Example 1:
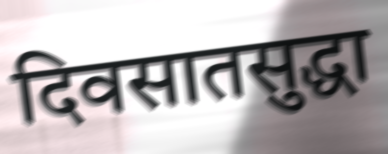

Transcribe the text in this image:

दिवसातसुद्धा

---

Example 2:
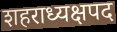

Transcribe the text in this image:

शहराध्यक्षपद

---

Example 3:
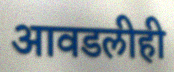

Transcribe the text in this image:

आवडलीही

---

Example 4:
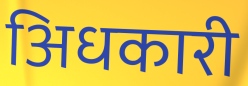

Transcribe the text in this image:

अिधकारी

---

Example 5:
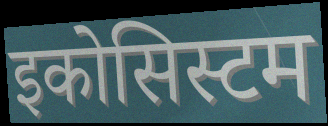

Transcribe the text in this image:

इकोसिस्टम